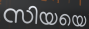
സിയയെ